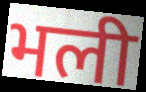
भली